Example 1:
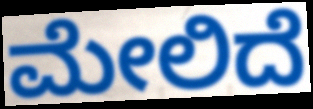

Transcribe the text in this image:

ಮೇಲಿದೆ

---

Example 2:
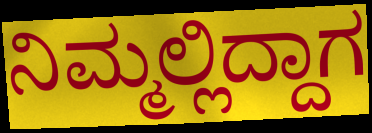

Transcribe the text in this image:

ನಿಮ್ಮಲ್ಲಿದ್ದಾಗ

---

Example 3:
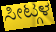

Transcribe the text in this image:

ಸೀಟ್ಗಳ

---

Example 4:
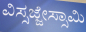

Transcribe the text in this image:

ವಿಸ್ಸಜ್ಜೇಸ್ಸಾಮಿ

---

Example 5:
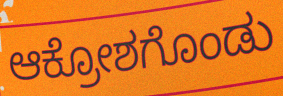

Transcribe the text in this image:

ಆಕ್ರೋಶಗೊಂಡು